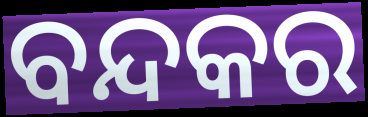
ବନ୍ଦକର